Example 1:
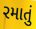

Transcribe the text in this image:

રમાતું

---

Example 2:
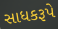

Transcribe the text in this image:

સાધકરૂપે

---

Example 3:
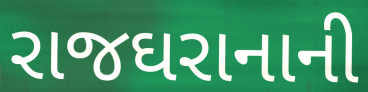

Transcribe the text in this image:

રાજઘરાનાની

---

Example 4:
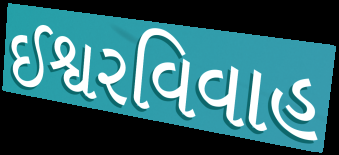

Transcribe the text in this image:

ઈશ્વરવિવાહ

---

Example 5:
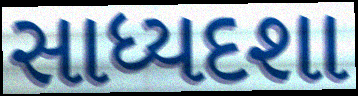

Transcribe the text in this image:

સાધ્યદશા